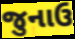
જુનાઉ